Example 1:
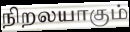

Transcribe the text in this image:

நிறலயாகும்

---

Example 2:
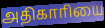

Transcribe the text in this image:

அதிகாரியை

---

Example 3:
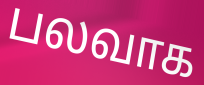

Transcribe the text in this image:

பலவாக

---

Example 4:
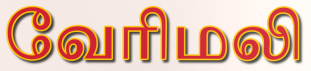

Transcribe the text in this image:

வேரிமலி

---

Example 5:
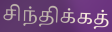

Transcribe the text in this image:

சிந்திக்கத்